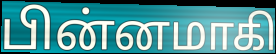
பின்னமாகி